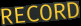
RECORD